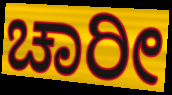
ಚಾರೀ